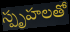
స్పృహలతో